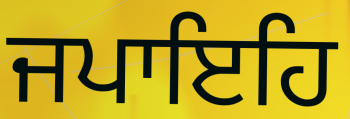
ਜਪਾਇਹਿ